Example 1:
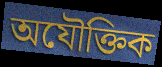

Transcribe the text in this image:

অযৌক্তিক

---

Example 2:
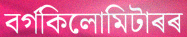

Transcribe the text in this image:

বৰ্গকিলোমিটাৰৰ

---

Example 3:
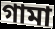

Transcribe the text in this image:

গামা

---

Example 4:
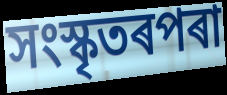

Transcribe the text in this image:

সংস্কৃতৰপৰা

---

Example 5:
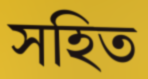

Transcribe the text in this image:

সহিত